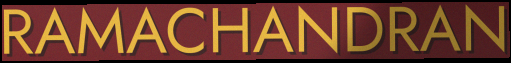
RAMACHANDRAN